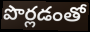
పొర్లడంతో